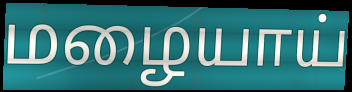
மழையாய்